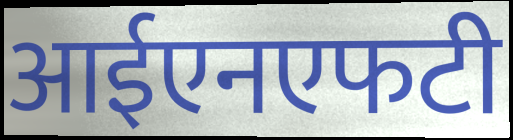
आईएनएफटी